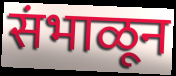
संभाळून